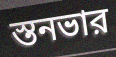
স্তনভার